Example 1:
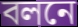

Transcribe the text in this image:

বলনে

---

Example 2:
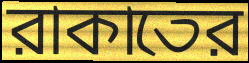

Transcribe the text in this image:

রাকাতের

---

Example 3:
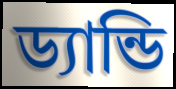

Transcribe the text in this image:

ড্যান্ডি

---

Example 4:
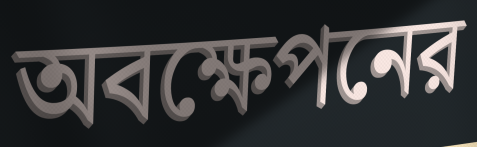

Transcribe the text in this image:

অবক্ষেপনের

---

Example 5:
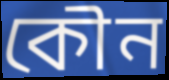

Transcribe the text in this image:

কৌন